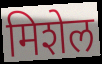
मिशेल